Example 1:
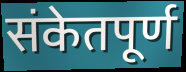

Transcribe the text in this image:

संकेतपूर्ण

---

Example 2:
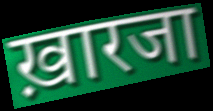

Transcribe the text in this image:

ख़ारजा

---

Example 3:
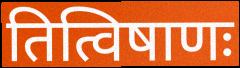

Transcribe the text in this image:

तित्विषाणः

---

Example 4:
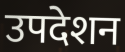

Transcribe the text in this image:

उपदेशन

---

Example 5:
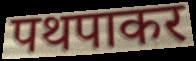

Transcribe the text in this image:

पथपाकर